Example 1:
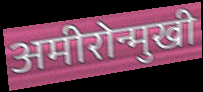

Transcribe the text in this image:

अमीरोन्मुखी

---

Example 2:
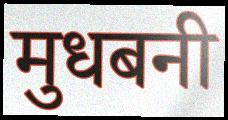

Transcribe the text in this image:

मुधबनी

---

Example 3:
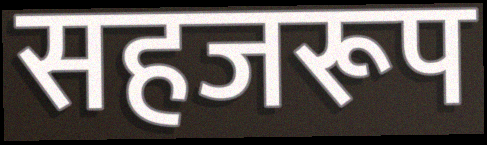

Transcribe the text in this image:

सहजरूप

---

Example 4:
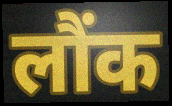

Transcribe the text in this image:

लौंक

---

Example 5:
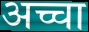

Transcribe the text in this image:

अच्चा